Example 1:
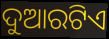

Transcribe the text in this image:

ଦୁଆରଟିଏ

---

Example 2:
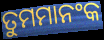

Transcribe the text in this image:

ତୁମମାନଂକ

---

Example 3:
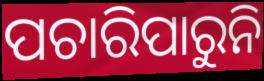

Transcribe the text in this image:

ପଚାରିପାରୁନି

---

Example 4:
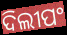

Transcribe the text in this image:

ଦିଲୀପଂ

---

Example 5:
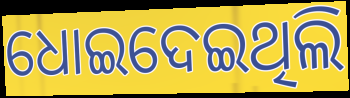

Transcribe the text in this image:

ଧୋଇଦେଇଥିଲି